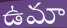
ఉమా